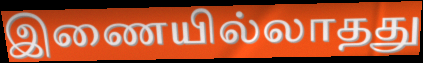
இணையில்லாதது